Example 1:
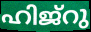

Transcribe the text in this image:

ഹിജ്റു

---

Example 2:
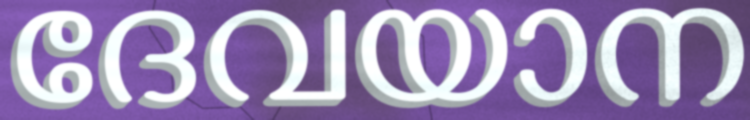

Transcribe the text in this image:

ദേവയാന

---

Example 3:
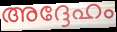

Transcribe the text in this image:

അദ്ദേഹം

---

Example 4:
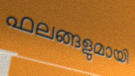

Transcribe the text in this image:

ഫലങ്ങളുമായി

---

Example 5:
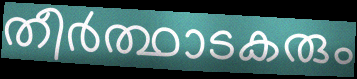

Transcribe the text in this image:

തീർത്ഥാടകരും